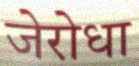
जेरोधा